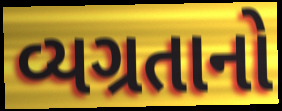
વ્યગ્રતાનો